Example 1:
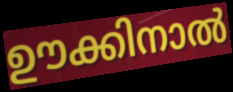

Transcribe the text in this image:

ഊക്കിനാൽ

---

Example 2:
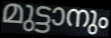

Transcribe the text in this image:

മുട്ടാനും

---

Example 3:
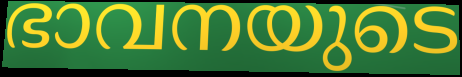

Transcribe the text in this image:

ഭാവനയുടെ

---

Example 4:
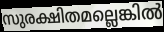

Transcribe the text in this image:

സുരക്ഷിതമല്ലെങ്കിൽ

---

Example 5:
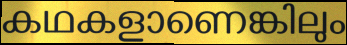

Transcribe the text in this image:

കഥകളാണെങ്കിലും